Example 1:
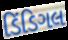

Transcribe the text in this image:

ડિંડિગલ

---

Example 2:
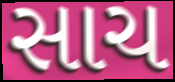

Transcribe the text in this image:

સાચ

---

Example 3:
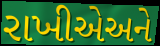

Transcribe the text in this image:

રાખીએઅને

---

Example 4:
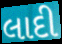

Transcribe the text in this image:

લાદી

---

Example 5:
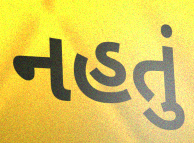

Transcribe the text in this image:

નહતું